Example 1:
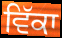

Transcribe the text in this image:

ਵਿੱਕਾ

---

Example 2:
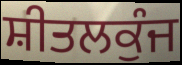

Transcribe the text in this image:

ਸ਼ੀਤਲਕੁੰਜ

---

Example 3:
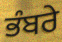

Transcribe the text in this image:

ਭੰਬਰੇ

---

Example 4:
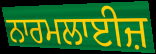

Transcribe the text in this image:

ਨਾਰਮਲਾਈਜ਼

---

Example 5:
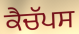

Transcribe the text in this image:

ਕੈਚੱਪਸ